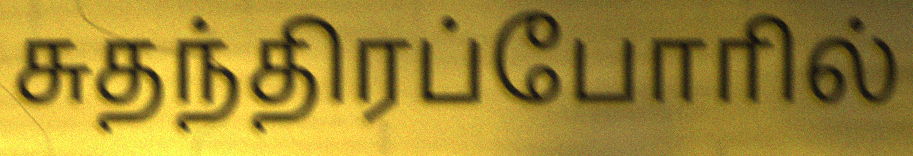
சுதந்திரப்போரில்